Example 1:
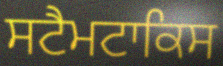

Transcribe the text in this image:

ਸਟੈਮਟਾਕਿਸ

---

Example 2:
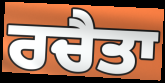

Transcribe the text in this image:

ਰਚੈਤਾ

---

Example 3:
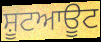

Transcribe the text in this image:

ਸ਼ੂਟਆਊਟ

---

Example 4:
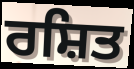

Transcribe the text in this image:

ਰਸ਼ਿਤ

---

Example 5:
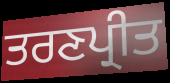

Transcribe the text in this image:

ਤਰਣਪ੍ਰੀਤ